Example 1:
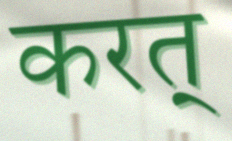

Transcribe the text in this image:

करत्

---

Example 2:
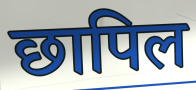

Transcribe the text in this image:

छापिल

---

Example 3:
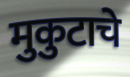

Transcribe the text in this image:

मुकुटाचे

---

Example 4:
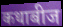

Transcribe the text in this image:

कथाबीज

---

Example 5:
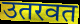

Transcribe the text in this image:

उतरवत